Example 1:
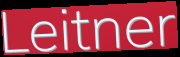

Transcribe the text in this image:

Leitner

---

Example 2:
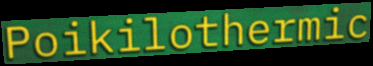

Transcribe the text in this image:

Poikilothermic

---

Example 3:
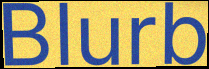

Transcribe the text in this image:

Blurb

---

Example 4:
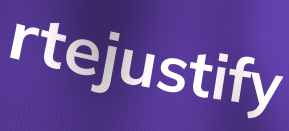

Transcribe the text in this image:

rtejustify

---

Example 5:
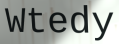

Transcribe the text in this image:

Wtedy